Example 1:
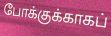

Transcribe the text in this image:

போக்குக்காகப்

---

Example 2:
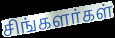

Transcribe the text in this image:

சிங்களர்கள்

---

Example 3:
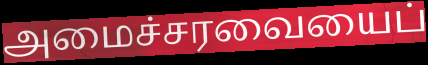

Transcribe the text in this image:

அமைச்சரவையைப்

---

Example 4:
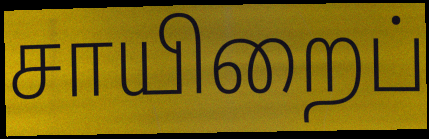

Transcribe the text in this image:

சாயிறைப்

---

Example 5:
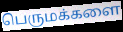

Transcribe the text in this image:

பெருமக்களை